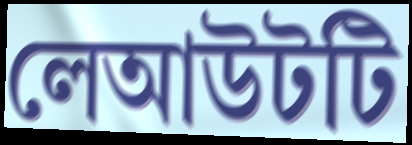
লেআউটটি